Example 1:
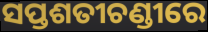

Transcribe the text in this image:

ସପ୍ତଶତୀଚଣ୍ଡୀରେ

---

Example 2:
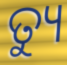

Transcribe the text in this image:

ତ୍ୟୁ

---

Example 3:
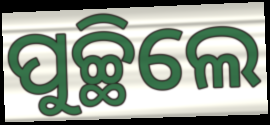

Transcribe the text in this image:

ପୁଚ୍ଛିଲେ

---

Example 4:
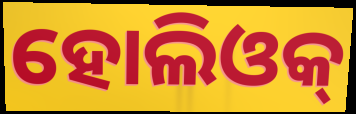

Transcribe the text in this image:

ହୋଲିଓକ୍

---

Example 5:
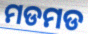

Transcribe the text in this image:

ମଡମଡ